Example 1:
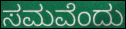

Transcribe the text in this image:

ಸಮವೆಂದು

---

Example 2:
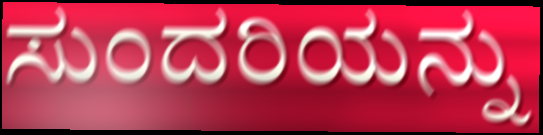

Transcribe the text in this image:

ಸುಂದರಿಯನ್ನು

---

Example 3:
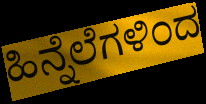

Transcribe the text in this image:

ಹಿನ್ನೆಲೆಗಳಿಂದ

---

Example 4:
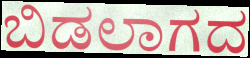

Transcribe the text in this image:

ಬಿಡಲಾಗದ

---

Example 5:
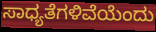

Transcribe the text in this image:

ಸಾಧ್ಯತೆಗಳಿವೆಯೆಂದು